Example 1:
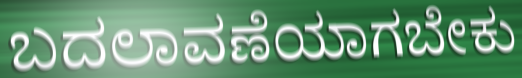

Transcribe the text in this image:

ಬದಲಾವಣೆಯಾಗಬೇಕು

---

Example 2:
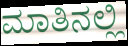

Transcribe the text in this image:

ಮಾತಿನಲ್ಲಿ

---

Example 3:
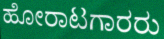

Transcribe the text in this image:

ಹೋರಾಟಗಾರರು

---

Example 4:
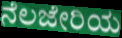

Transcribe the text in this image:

ನೆಲಜೇರಿಯ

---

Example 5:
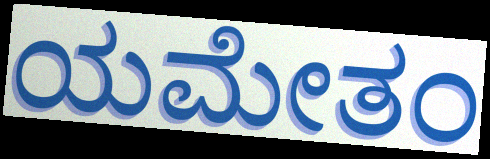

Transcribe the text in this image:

ಯಮೇತಂ